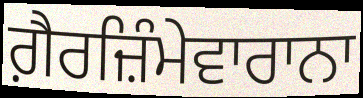
ਗ਼ੈਰਜ਼ਿੰਮੇਵਾਰਾਨਾ